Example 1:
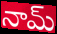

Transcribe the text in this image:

నామ్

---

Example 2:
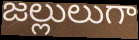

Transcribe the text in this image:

జల్లులుగా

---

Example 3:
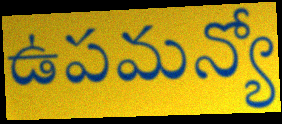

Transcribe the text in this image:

ఉపమన్యో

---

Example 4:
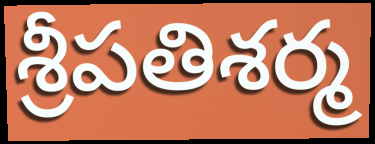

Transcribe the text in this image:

శ్రీపతిశర్మ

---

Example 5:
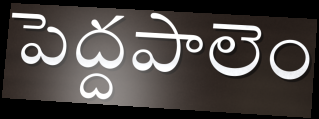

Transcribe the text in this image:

పెద్దపాలెం